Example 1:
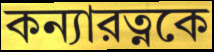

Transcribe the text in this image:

কন্যারত্নকে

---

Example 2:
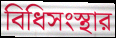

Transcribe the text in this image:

বিধিসংস্থার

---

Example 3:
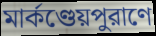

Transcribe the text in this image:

মার্কণ্ডেয়পুরাণে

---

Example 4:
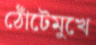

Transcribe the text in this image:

ঠোঁটেমুখে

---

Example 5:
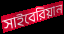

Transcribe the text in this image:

সাইবেরিয়ান